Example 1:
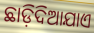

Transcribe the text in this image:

ଛାଡ଼ିଦିଆଯାଏ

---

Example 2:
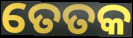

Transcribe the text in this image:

ତେତକ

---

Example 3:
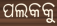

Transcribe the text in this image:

ପଲକକୁ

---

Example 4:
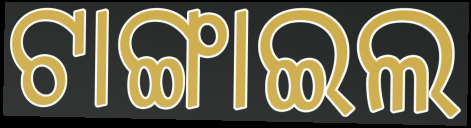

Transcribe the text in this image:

ଟାଙ୍ଗାଇଲ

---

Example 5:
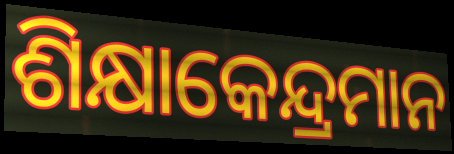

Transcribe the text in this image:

ଶିକ୍ଷାକେନ୍ଦ୍ରମାନ